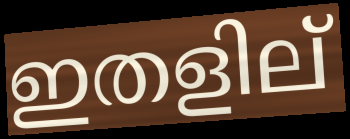
ഇതളില്